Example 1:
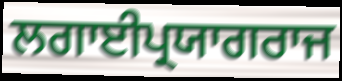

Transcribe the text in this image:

ਲਗਾਈਪ੍ਰਯਾਗਰਾਜ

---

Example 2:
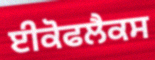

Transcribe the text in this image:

ਈਕੋਫਲੈਕਸ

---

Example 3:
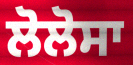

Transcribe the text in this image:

ਲੋਲੋਸਾ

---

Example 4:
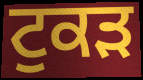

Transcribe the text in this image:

ਟੁਕੜ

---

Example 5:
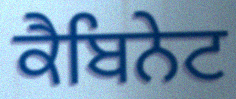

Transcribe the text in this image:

ਕੈਬਿਨੇਟ